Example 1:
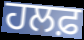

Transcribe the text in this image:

ਹਲਫ਼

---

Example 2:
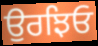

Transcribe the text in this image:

ਉਰਝਿਓ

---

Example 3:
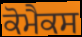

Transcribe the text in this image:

ਕੋਮੈਕਸ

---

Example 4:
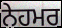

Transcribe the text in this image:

ਨੇਹਮਰ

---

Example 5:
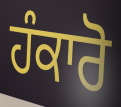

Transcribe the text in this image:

ਹੰਕਾਰੋ